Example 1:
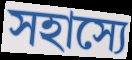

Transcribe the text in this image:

সহাস্যে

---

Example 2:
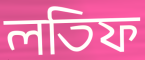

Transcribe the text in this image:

লতিফ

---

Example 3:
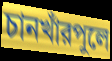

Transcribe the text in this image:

চানখাঁরপুলে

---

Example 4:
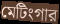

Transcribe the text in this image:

মেটিংগার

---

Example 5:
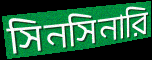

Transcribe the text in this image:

সিনসিনারি